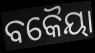
ବକୈୟା